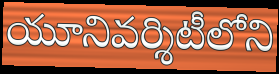
యూనివర్శిటీలోని